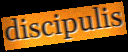
discipulis